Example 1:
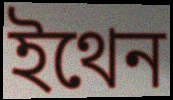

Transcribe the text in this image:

ইথেন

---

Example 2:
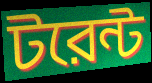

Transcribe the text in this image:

টরেন্ট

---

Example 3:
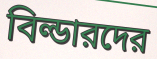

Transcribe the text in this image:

বিল্ডারদের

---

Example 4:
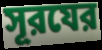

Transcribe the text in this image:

সূরযের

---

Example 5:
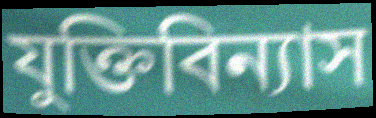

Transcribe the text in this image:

যুক্তিবিন্যাস